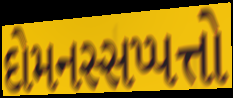
દોમનસ્સપ્પત્તો